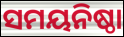
ସମୟନିଷ୍ଠା